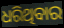
ଧରିଥିବାର